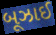
બૂઝાઈ